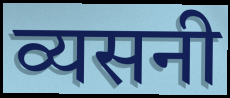
व्यसनी